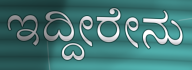
ಇದ್ದೀರೇನು